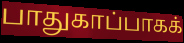
பாதுகாப்பாகக்